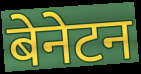
बेनेटन